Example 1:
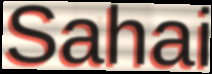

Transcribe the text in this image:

Sahai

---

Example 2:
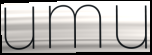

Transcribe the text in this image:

umu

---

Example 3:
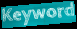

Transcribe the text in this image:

Keyword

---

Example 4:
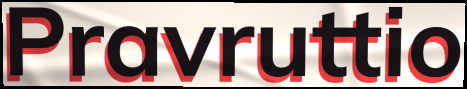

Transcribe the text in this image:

Pravruttio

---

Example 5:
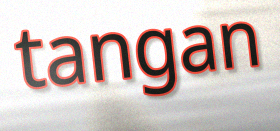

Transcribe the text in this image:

tangan